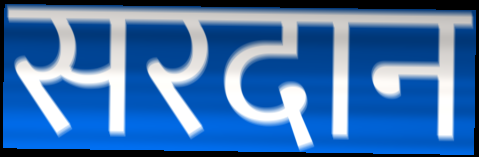
सरदान